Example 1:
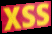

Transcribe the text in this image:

XSS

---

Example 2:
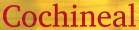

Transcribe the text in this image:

Cochineal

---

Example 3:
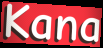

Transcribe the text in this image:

Kana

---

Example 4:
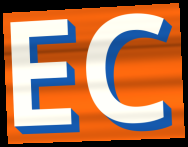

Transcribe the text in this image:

EC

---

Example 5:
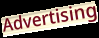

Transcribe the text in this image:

Advertising